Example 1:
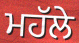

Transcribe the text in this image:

ਮਹੱਲੇ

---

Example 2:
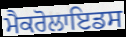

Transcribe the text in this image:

ਮੈਕਰੋਲਾਇਡਸ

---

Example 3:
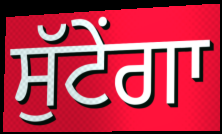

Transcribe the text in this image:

ਸੁੱਟੇਂਗਾ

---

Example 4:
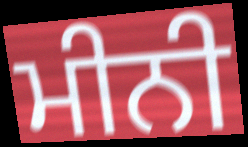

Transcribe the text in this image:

ਮੀਨੀ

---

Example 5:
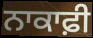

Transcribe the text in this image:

ਨਾਕਾਫ਼ੀ